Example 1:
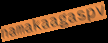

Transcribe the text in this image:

namakaagaspv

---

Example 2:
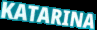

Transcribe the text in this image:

KATARINA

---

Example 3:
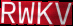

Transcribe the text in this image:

RWKV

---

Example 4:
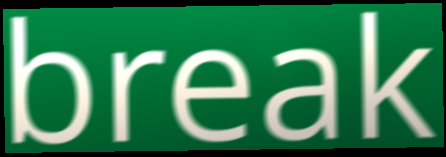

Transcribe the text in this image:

break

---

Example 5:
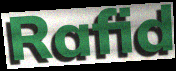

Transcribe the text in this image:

Rafid